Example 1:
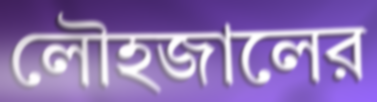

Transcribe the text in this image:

লৌহজালের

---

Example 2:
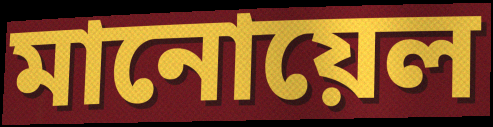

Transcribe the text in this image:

মানোয়েল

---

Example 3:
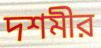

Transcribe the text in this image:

দশমীর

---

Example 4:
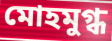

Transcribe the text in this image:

মোহমুগ্ধ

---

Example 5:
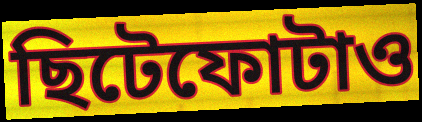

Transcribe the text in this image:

ছিটেফোটাও